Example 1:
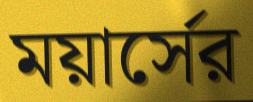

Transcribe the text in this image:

ময়ার্সের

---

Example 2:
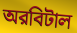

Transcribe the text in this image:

অরবিটাল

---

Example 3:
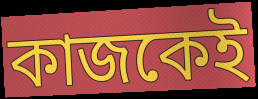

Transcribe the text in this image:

কাজকেই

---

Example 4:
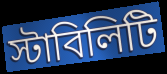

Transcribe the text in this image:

স্টাবিলিটি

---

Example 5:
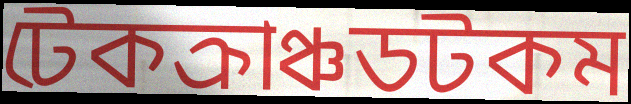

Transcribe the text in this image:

টেকক্রাঞ্চডটকম